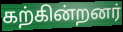
கற்கின்றனர்